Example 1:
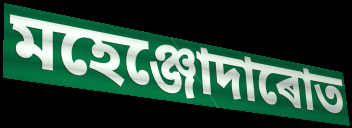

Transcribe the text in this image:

মহেঞ্জোদাৰোত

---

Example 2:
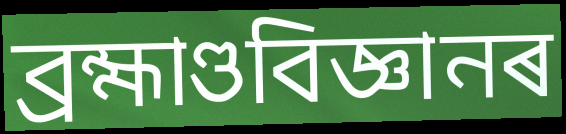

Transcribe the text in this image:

ব্ৰহ্মাণ্ডবিজ্ঞানৰ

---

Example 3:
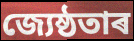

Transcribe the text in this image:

জ্যেষ্ঠতাৰ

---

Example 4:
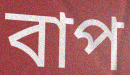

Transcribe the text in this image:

বাপ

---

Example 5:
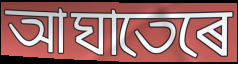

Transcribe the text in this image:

আঘাতেৰে